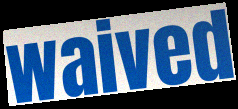
waived